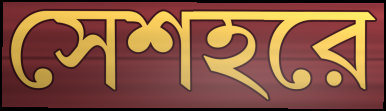
সেশহরে